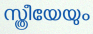
സ്ത്രീയേയും